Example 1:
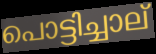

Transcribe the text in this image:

പൊട്ടിച്ചാല്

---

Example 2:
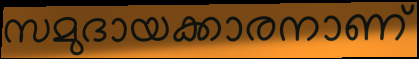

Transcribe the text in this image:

സമുദായക്കാരനാണ്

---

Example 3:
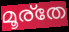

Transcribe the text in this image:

മൂര്തേ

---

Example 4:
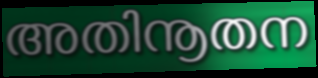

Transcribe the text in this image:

അതിനൂതന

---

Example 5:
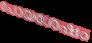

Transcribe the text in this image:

പോയശേഷം